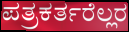
ಪತ್ರಕರ್ತರೆಲ್ಲರ